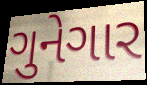
ગુનેગાર